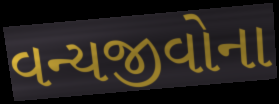
વન્યજીવોના